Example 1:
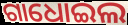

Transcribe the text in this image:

ଗାଧୋଇଲ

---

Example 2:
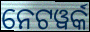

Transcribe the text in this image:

ନେଟୱର୍କ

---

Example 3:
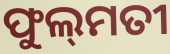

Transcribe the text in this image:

ଫୁଲ୍‍ମତୀ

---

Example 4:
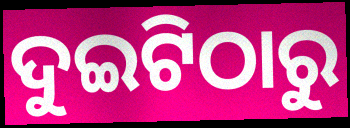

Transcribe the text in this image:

ଦୁଇଟିଠାରୁ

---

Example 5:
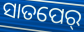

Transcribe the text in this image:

ସାତପେର୍